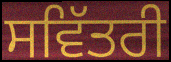
ਸਵਿੱਤਰੀ